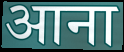
आना